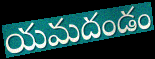
యమదండం